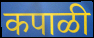
कपाळी